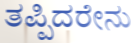
ತಪ್ಪಿದರೇನು